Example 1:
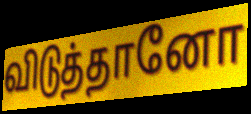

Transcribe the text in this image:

விடுத்தானோ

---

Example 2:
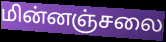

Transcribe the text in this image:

மின்னஞ்சலை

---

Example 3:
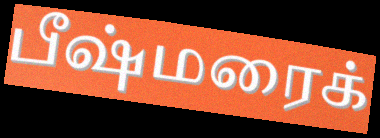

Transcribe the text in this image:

பீஷ்மரைக்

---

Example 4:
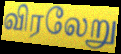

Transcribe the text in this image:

விரலேறு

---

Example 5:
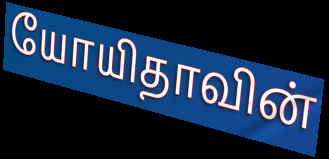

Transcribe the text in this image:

யோயிதாவின்